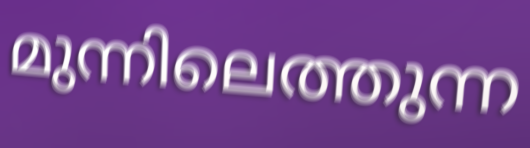
മുന്നിലെത്തുന്ന